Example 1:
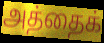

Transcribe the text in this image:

அத்தைக்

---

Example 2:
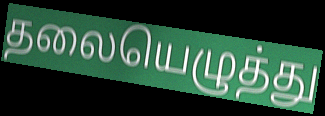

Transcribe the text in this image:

தலையெழுத்து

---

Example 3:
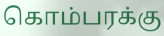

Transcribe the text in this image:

கொம்பரக்கு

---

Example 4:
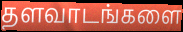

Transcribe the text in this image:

தளவாடங்களை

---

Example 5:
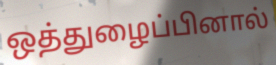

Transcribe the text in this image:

ஒத்துழைப்பினால்